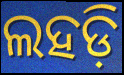
ଲହଡ଼ି